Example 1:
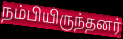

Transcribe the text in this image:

நம்பியிருந்தனர்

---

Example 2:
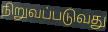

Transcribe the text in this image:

நிறுவப்படுவது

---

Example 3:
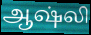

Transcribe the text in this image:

ஆஷ்லி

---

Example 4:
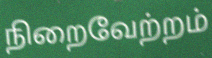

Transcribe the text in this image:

நிறைவேற்றம்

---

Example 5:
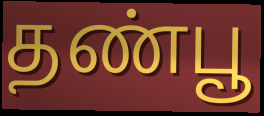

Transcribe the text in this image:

தண்பூ